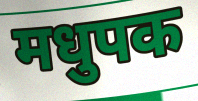
मधुपक